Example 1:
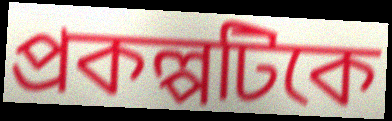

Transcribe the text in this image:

প্রকল্পটিকে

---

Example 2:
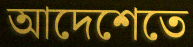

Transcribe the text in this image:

আদেশেতে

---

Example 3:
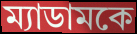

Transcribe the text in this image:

ম্যাডামকে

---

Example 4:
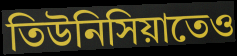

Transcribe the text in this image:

তিউনিসিয়াতেও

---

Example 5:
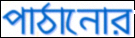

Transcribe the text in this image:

পাঠানোর